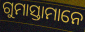
ଗୁମାସ୍ତାମାନେ